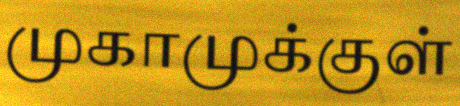
முகாமுக்குள்